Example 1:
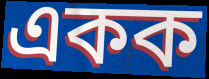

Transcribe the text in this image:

একক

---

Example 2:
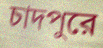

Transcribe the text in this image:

চাদপুরে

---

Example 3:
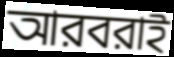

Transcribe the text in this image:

আরবরাই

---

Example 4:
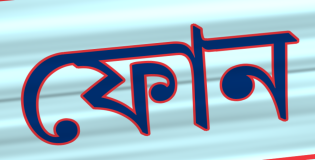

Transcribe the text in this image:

ফোন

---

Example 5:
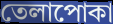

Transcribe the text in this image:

তেলাপোকা